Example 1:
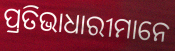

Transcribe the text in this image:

ପ୍ରତିଭାଧାରୀମାନେ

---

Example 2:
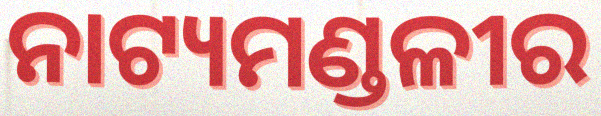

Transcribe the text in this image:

ନାଟ୍ୟମଣ୍ଡଳୀର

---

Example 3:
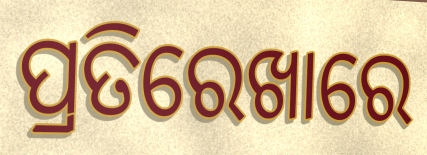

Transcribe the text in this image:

ପ୍ରତିରେଖାରେ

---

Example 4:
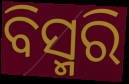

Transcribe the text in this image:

ବିସ୍ମରି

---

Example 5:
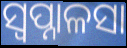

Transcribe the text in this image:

ସ୍ୱପ୍ନାଳସା